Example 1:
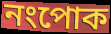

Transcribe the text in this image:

নংপোক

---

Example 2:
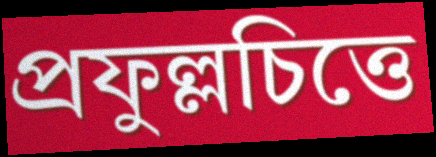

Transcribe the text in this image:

প্রফুল্লচিত্তে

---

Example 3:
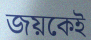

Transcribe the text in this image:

জয়কেই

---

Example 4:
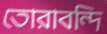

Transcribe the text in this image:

তোরাবন্দি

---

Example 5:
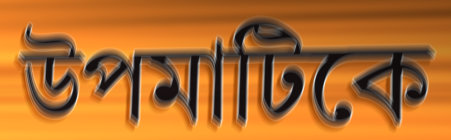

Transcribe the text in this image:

উপমাটিকে